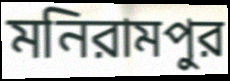
মনিরামপুর